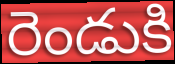
రెండుకి